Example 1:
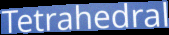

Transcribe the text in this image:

Tetrahedral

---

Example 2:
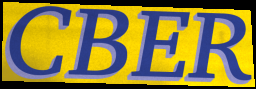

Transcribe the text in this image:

CBER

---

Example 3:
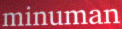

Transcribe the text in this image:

minuman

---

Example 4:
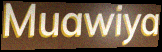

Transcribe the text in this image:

Muawiya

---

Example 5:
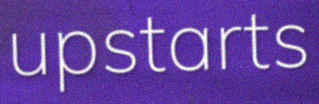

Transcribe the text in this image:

upstarts